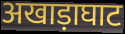
अखाड़ाघाट